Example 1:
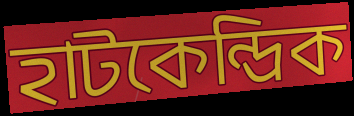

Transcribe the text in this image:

হাটকেন্দ্রিক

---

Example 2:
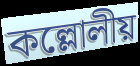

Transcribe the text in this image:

কল্লোলীয়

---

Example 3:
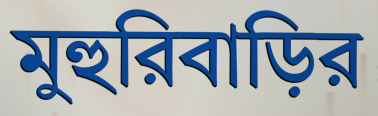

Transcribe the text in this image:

মুহুরিবাড়ির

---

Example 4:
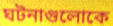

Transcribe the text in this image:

ঘটনাগুলোকে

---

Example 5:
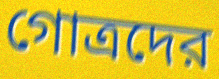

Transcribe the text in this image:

গোত্রদের